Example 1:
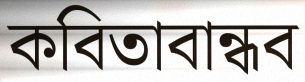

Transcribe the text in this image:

কবিতাবান্ধব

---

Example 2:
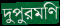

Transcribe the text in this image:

দুপুরমণি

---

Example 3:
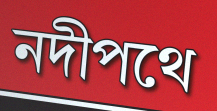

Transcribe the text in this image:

নদীপথে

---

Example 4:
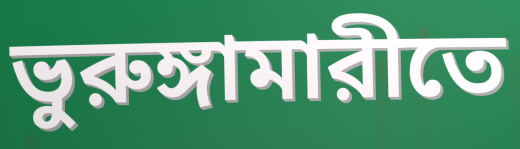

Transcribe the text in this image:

ভুরুঙ্গামারীতে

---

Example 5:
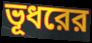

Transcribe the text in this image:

ভূধরের